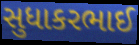
સુધાકરભાઈ